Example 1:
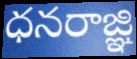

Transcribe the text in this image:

ధనరాజ్ఞి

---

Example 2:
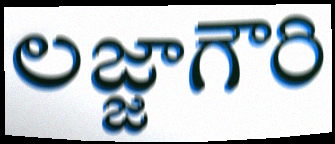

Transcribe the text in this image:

లజ్జాగౌరి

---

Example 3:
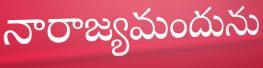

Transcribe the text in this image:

నారాజ్యమందును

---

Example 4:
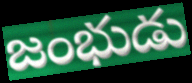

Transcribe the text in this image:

జంభుడు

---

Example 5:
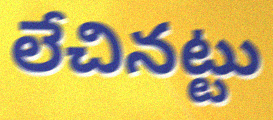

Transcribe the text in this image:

లేచినట్టు